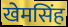
खेमसिंह